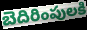
బెదిరింపులకి